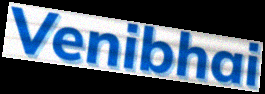
Venibhai